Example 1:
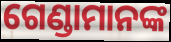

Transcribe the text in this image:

ଗେଣ୍ଡାମାନଙ୍କ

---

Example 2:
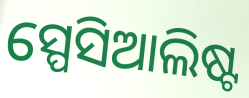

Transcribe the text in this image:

ସ୍ପେସିଆଲିଷ୍ଟ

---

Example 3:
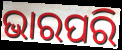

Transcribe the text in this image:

ଭାରପରି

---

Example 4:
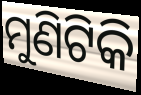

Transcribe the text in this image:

ମୁଣିଟିକି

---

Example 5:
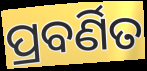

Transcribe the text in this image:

ପ୍ରବର୍ଣିତ